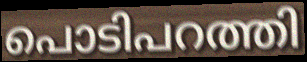
പൊടിപറത്തി